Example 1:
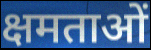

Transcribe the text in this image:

क्षमताओं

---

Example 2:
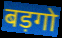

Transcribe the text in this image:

बड़गो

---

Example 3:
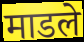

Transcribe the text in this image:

माडले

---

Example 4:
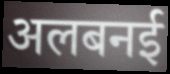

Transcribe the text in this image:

अलबनई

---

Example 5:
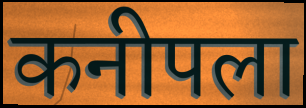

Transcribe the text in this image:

कनीपला